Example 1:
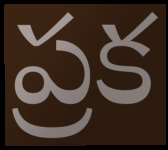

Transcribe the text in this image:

ప్రక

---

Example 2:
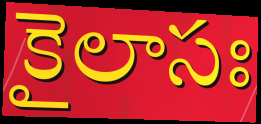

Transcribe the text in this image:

కైలాసః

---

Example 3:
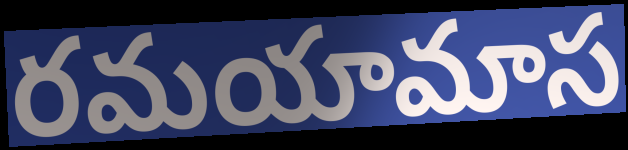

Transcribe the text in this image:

రమయామాస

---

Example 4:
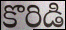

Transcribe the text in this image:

కొరిడి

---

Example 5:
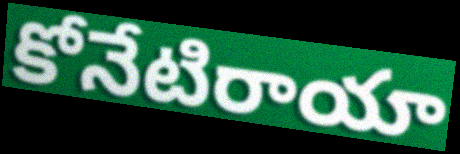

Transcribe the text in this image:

కోనేటిరాయా